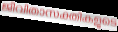
ജീവിതാസക്തികളുടെ